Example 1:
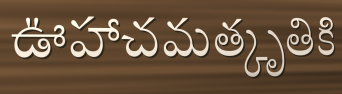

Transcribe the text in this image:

ఊహాచమత్కృతికి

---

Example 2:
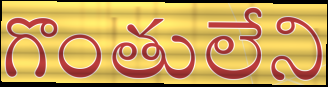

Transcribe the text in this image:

గొంతులేని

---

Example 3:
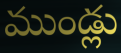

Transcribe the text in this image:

ముండ్లు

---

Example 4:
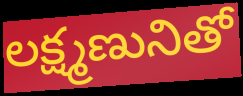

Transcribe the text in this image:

లక్ష్మణునితో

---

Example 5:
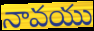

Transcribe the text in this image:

నావయు